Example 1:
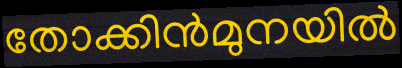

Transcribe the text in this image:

തോക്കിൻമുനയിൽ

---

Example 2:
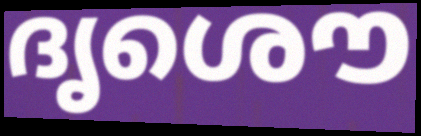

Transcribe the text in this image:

ദൃശൌ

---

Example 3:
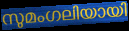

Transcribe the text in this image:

സുമംഗലിയായി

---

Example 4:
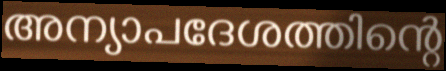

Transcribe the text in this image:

അന്യാപദേശത്തിന്റെ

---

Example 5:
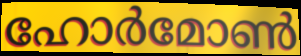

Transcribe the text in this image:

ഹോർമോൺ